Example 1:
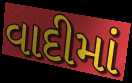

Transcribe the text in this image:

વાદીમાં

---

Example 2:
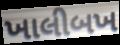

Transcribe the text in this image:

ખાલીબખ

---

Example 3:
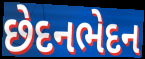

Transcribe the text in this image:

છેદનભેદન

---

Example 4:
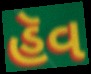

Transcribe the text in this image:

હૅવ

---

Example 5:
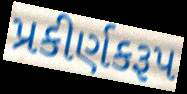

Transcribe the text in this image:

પ્રકીર્ણકરૂપ